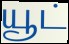
யூட்